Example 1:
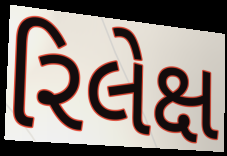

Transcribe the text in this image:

રિલેક્ષ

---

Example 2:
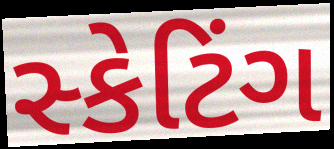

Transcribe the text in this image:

સ્કેટિંગ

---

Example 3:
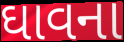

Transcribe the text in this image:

ઘાવના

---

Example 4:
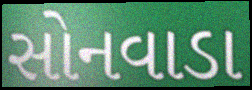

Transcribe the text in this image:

સોનવાડા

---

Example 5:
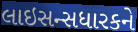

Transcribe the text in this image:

લાઇસન્સધારકને